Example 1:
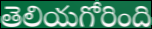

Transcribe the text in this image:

తెలియగోరింది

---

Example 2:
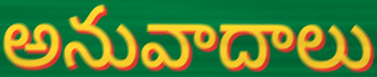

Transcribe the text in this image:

అనువాదాలు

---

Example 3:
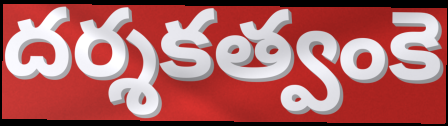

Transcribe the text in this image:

దర్శకత్వంకె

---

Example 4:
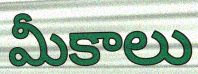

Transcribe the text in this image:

మీకాలు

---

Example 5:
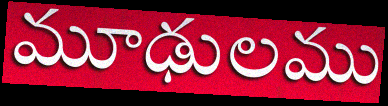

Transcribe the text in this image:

మూఢులము